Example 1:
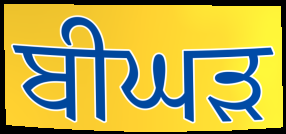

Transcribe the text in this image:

ਬੀਘੜ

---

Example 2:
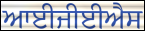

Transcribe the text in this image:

ਆਈਜੀਈਐਸ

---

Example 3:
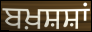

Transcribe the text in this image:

ਬਖ਼ਸ਼ਸ਼ਾਂ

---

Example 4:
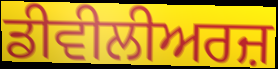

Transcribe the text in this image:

ਡੀਵੀਲੀਅਰਜ਼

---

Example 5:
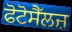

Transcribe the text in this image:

ਫੋਟੋਸੈੱਲਜ਼